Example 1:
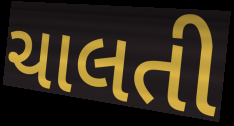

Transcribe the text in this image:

ચાલતી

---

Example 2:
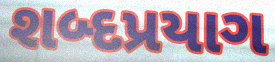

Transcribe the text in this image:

શબ્દપ્રયાગ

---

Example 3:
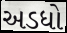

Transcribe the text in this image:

અડધો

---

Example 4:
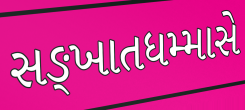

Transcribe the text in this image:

સઙ્ખાતધમ્માસે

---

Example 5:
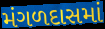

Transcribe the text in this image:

મંગળદાસમાં